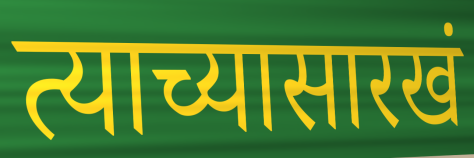
त्याच्यासारखं